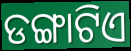
ଡଙ୍ଗାଟିଏ